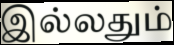
இல்லதும்